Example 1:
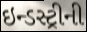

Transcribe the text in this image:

ઇન્ડસ્ટ્રીની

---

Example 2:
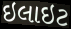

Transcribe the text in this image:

ઇલાઇટ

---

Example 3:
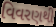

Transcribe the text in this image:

વિવરણથી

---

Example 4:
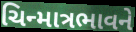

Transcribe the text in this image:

ચિન્માત્રભાવને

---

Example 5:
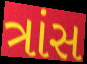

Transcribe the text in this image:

ત્રાંસ